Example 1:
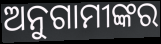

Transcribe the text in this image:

ଅନୁଗାମୀଙ୍କର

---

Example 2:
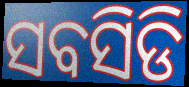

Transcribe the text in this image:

ସବସିଡି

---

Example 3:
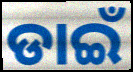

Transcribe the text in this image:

ଡାଇଁ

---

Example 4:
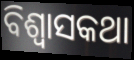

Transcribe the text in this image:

ବିଶ୍ଵାସକଥା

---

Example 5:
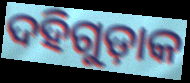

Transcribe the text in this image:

ଦହିଗୁଡ଼ାକ